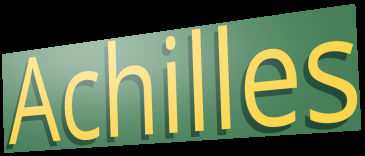
Achilles